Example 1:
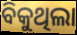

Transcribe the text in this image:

ବିକୁଥିଲା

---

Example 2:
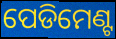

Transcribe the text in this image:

ପେଡିମେଣ୍ଟ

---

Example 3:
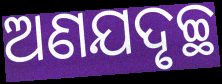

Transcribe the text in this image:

ଅଣଯଦୃଚ୍ଛ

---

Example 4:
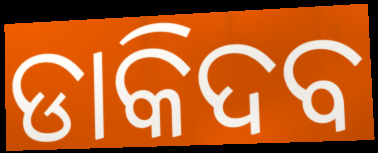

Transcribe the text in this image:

ଡାକିଦବ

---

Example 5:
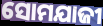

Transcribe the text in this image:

ସୋମଯାଜୀ